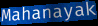
Mahanayak